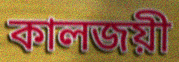
কালজয়ী